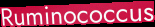
Ruminococcus